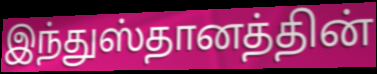
இந்துஸ்தானத்தின்